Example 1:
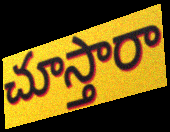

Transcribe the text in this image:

చూస్తారా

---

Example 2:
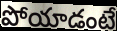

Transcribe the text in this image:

పోయాడంటే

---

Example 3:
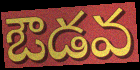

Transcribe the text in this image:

ఔడవ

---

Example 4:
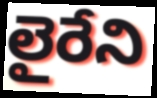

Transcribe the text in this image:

లైరేని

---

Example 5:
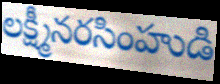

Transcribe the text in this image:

లక్ష్మీనరసింహుడి